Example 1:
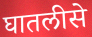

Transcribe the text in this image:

घातलीसे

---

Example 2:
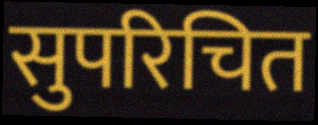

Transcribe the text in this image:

सुपरिचित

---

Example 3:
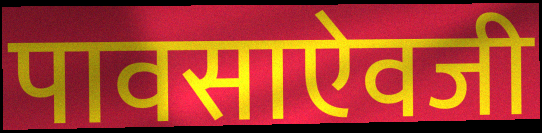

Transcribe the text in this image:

पावसाऐवजी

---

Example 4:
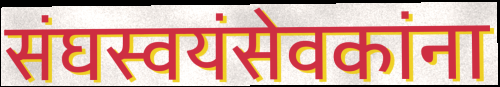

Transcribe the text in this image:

संघस्वयंसेवकांना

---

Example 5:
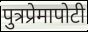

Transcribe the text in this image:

पुत्रप्रेमापोटी